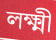
লক্ষ্মী